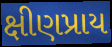
ક્ષીણપ્રાય